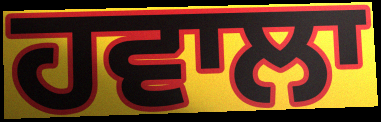
ਹਵਾਲਾ